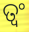
ତ୍ୱଂ